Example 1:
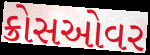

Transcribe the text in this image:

ક્રોસઓવર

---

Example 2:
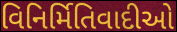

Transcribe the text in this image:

વિનિર્મિતિવાદીઓ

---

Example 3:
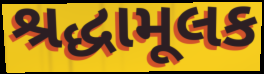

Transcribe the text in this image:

શ્રદ્ધામૂલક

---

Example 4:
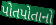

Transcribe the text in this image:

પોતપોતાનો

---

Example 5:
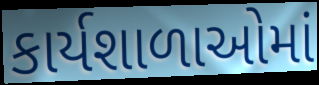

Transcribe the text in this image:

કાર્યશાળાઓમાં